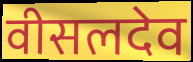
वीसलदेव